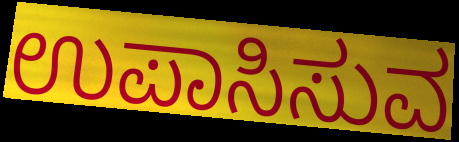
ಉಪಾಸಿಸುವ